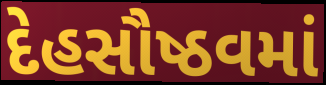
દેહસૌષ્ઠવમાં